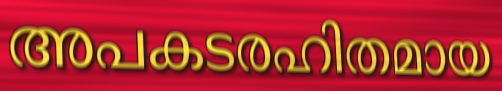
അപകടരഹിതമായ